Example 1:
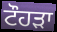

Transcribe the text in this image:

ਟੌਹਡ਼ਾ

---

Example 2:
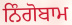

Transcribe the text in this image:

ਨਿੰਗੋਬਾਮ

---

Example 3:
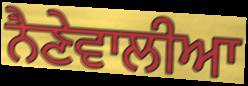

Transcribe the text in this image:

ਨੈਣੇਵਾਲੀਆ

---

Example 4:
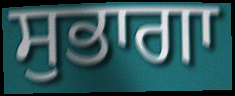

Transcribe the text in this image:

ਸੁਭਾਗਾ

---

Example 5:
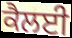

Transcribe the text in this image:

ਕੈਲਈ